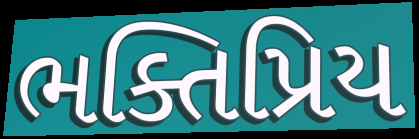
ભક્તિપ્રિય